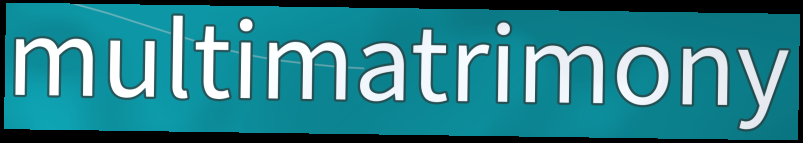
multimatrimony